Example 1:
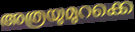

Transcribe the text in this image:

അത്രയുമുറക്കെ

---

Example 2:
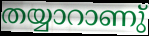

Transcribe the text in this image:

തയ്യാറാണു്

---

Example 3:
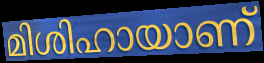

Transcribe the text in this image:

മിശിഹായാണ്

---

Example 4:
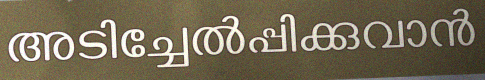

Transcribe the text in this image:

അടിച്ചേൽപ്പിക്കുവാൻ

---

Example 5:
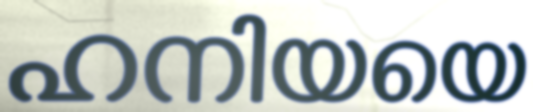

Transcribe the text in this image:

ഹനിയയെ